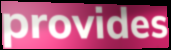
provides